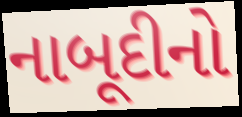
નાબૂદીનો